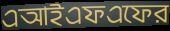
এআইএফএফের